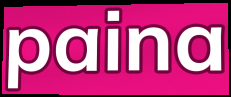
paina